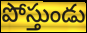
పోస్తుండు